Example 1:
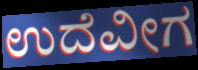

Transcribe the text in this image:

ಉದೆವೀಗ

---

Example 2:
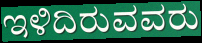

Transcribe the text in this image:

ಇಳಿದಿರುವವರು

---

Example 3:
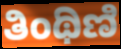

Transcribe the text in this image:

ತಿಂಥಿಣಿ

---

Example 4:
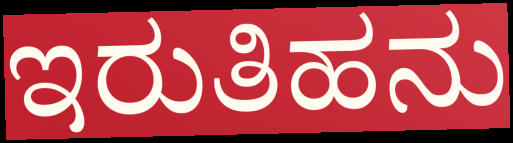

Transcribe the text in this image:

ಇರುತಿಹನು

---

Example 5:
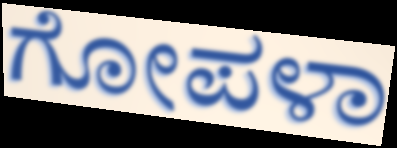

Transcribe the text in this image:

ಗೋಪಳಾ